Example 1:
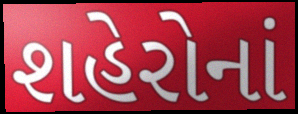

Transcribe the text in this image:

શહેરોનાં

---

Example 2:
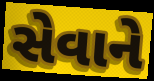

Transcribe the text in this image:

સેવાને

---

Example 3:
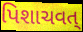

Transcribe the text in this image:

પિશાચવત્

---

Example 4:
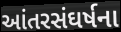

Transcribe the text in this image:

આંતરસંઘર્ષના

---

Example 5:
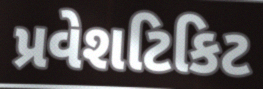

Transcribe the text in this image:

પ્રવેશટિકિટ